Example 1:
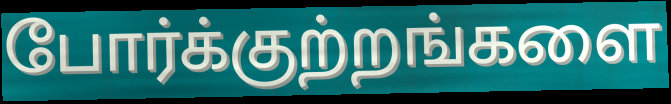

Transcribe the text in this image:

போர்க்குற்றங்களை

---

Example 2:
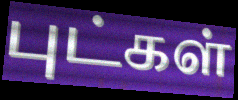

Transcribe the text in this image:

புட்கள்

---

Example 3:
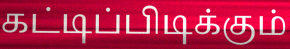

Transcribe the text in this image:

கட்டிப்பிடிக்கும்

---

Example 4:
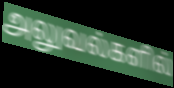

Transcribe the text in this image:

அலுவல்களில்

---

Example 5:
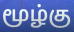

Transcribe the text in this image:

மூழ்கு